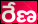
రేణ